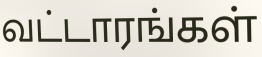
வட்டாரங்கள்